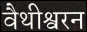
वैथीश्वरन